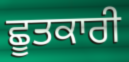
ਛੂਤਕਾਰੀ